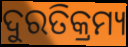
ଦୁରତିକ୍ରମ୍ୟ